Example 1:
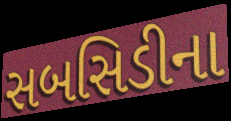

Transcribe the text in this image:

સબસિડીના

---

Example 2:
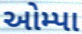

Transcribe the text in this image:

ઓમ્પા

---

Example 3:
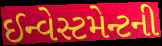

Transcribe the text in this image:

ઈન્વેસ્ટમેન્ટની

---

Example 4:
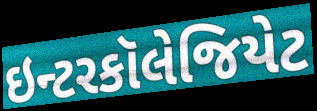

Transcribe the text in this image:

ઇન્ટરકૉલેજિયેટ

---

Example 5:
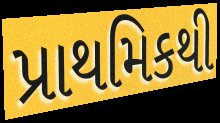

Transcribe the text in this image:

પ્રાથમિકથી